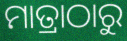
ମାତ୍ରାଠାରୁ